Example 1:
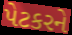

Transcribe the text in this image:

પેટકરને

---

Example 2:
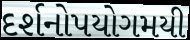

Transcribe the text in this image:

દર્શનોપયોગમયી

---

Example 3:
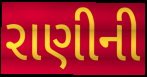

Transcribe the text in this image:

રાણીની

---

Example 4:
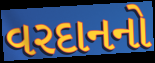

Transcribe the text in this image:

વરદાનનો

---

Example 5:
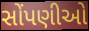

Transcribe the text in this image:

સોંપણીઓ